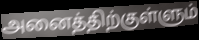
அனைத்திற்குள்ளும்